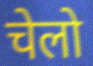
चेलो